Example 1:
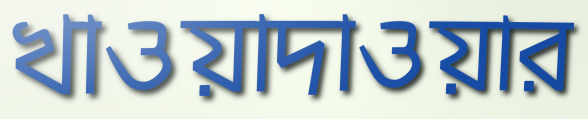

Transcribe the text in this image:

খাওয়াদাওয়ার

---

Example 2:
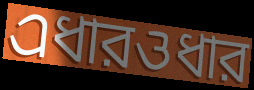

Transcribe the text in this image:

এধারওধার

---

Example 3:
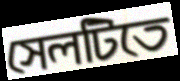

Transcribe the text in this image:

সেলটিতে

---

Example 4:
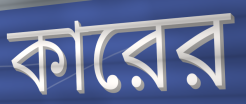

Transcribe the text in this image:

কারের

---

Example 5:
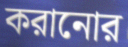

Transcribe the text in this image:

করানোর